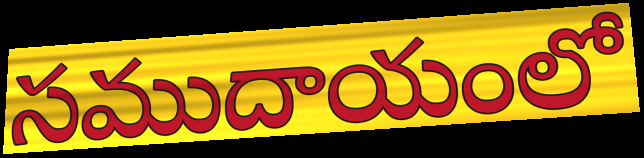
సముదాయంలో